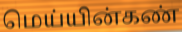
மெய்யின்கண்